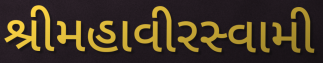
શ્રીમહાવીરસ્વામી